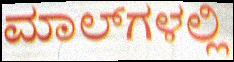
ಮಾಲ್‌ಗಳಲ್ಲಿ